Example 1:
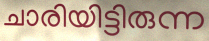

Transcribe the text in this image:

ചാരിയിട്ടിരുന്ന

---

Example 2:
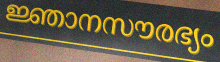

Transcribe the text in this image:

ജ്ഞാനസൗരഭ്യം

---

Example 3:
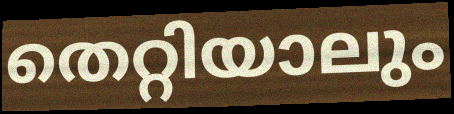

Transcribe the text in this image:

തെറ്റിയാലും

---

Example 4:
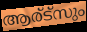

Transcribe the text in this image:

ആര്ട്സും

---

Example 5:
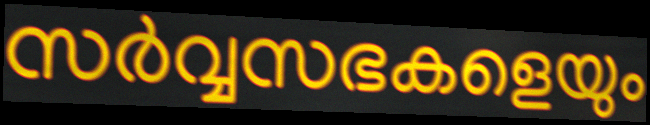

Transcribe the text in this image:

സർവ്വസഭകളെയും